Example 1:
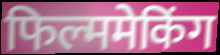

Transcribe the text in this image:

फिल्‍ममेकिंग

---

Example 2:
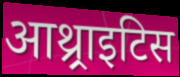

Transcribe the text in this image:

आथ्र्राइटिस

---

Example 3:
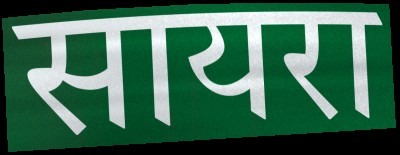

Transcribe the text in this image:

सायरा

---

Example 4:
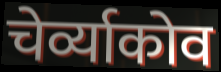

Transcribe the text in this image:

चेर्व्याकोव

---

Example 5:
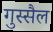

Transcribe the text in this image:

गुस्सैल